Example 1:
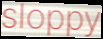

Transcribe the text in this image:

sloppy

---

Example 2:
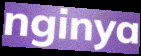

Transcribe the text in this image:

nginya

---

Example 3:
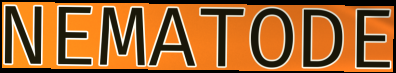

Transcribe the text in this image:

NEMATODE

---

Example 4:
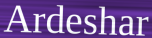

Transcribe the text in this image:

Ardeshar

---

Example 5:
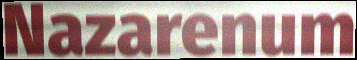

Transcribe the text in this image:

Nazarenum